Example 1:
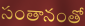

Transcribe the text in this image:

సంతానంతో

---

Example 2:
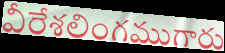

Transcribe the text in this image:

వీరేశలింగముగారు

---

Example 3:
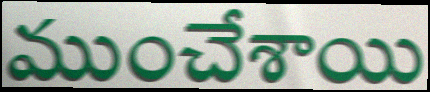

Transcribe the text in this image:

ముంచేశాయి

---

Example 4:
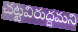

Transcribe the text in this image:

చట్టవిరుద్దమని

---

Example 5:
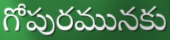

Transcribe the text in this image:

గోపురమునకు